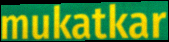
mukatkar